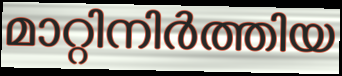
മാറ്റിനിർത്തിയ